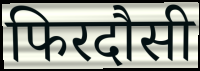
फिरदौसी